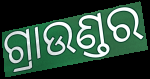
ଗ୍ରାଉଣ୍ଡର